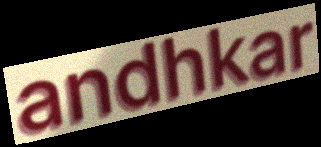
andhkar